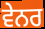
ਵੇਨਰ